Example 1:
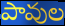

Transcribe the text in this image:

పావుల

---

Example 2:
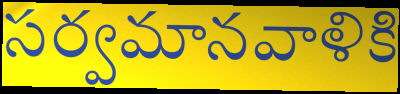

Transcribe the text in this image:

సర్వమానవాళికి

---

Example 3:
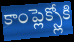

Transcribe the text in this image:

కాంప్లెక్స్లోకి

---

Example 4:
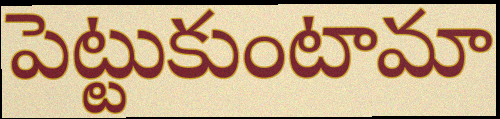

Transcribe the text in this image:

పెట్టుకుంటామా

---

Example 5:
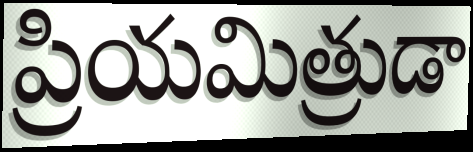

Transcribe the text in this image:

ప్రియమిత్రుడా